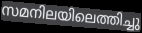
സമനിലയിലെത്തിച്ചു